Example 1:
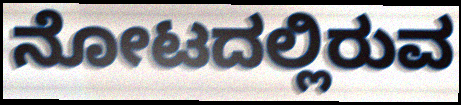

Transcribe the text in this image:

ನೋಟದಲ್ಲಿರುವ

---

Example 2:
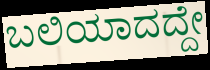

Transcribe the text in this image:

ಬಲಿಯಾದದ್ದೇ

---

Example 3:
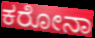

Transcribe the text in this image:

ಕರೋನಾ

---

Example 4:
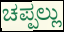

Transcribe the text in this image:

ಚಪ್ಪಲ್ಲು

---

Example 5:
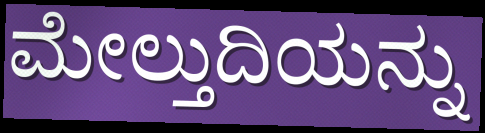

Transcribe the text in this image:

ಮೇಲ್ತುದಿಯನ್ನು